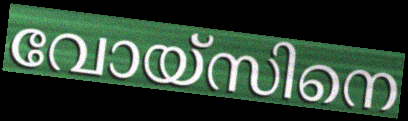
വോയ്സിനെ